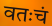
वतःचं